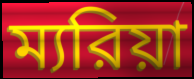
ম্যরিয়া